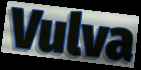
Vulva